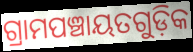
ଗ୍ରାମପଞ୍ଚାୟତଗୁଡ଼ିକ